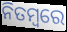
ନିତମ୍ୱରେ